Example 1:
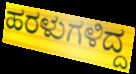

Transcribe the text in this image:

ಹರಳುಗಳಿದ್ದ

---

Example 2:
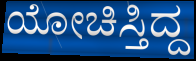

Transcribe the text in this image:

ಯೋಚಿಸ್ತಿದ್ದ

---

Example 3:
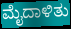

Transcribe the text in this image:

ಮೈದಾಳಿತು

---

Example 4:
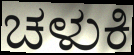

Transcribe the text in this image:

ಚಳುಕಿ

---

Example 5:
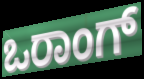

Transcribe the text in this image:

ಒರಾಂಗ್